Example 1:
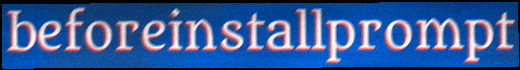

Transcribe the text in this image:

beforeinstallprompt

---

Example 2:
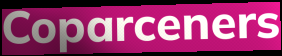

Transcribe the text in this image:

Coparceners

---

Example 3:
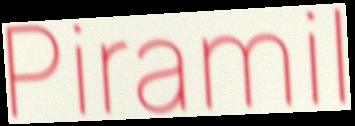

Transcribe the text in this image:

Piramil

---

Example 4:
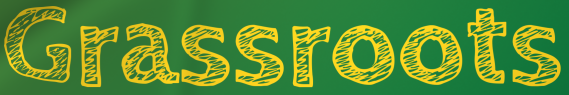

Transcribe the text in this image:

Grassroots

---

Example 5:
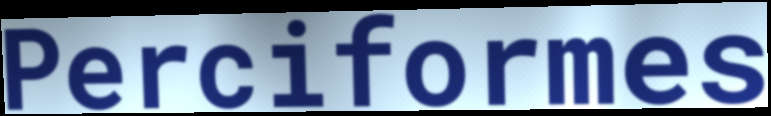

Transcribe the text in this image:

Perciformes